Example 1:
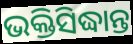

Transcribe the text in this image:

ଭକ୍ତିସିଦ୍ଧାନ୍ତ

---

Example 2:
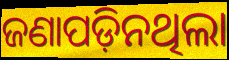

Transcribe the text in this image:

ଜଣାପଡ଼ିନଥିଲା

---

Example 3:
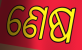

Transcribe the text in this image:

ଣେଷ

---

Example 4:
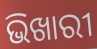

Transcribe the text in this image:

ଭିଖାରୀ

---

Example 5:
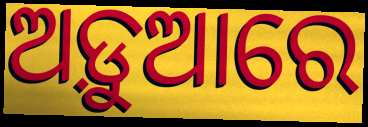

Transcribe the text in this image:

ଅଡ଼ୁଆରେ